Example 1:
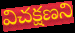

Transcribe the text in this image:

విచక్షణని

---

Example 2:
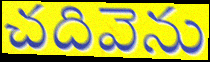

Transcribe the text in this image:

చదివెను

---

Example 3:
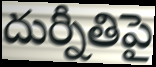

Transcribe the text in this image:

దుర్నీతిపై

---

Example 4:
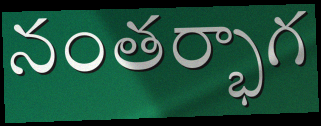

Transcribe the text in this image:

నంతర్భాగ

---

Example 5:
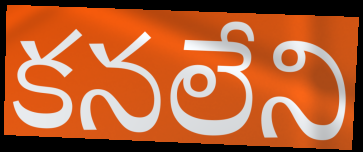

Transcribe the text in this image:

కనలేని